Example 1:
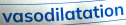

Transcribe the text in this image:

vasodilatation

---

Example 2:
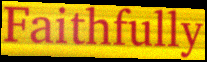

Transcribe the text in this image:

Faithfully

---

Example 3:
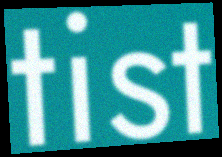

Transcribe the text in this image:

tist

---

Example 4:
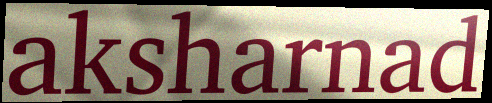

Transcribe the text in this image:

aksharnad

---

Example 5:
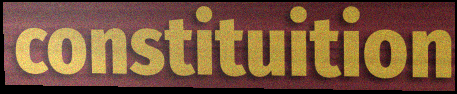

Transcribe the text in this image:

constituition